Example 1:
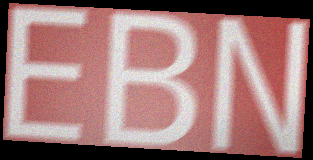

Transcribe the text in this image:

EBN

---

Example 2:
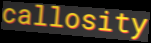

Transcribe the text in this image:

callosity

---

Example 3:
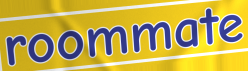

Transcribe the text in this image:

roommate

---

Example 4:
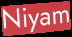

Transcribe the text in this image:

Niyam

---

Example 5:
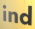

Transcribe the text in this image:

ind